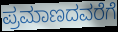
ಪ್ರಮಾಣದವರೆಗೆ